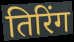
तिरिंग